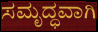
ಸಮೃದ್ಧವಾಗಿ